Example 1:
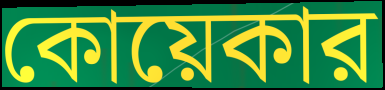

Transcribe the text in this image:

কোয়েকার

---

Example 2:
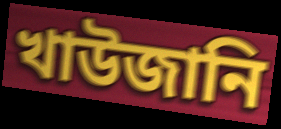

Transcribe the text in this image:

খাউজানি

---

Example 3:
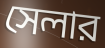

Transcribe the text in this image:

সেলার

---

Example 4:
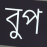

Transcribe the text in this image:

বুপ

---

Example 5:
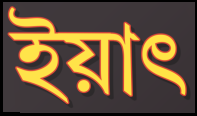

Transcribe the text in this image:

ইয়াৎ